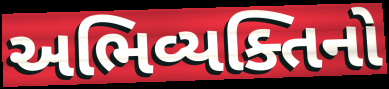
અભિવ્યક્તિનો